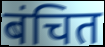
बंचित